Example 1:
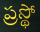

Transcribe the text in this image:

ప్రస్థో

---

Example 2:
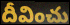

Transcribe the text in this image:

దీవించు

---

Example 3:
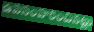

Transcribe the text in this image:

ఉపసంహరించినట్లు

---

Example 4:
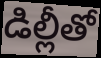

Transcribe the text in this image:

డిల్లీతో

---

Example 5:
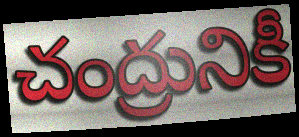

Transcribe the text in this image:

చంద్రునికీ